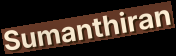
Sumanthiran